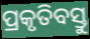
ପ୍ରକୃତିବସ୍ତୁ